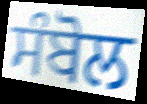
ਸੰਬੋਲ